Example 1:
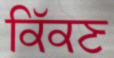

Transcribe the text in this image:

ਕਿੱਕਣ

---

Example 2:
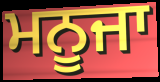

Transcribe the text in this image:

ਮਨੂਜਾ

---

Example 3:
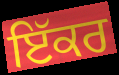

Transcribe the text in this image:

ਇੱਕਰ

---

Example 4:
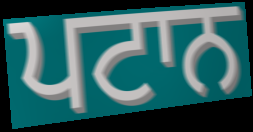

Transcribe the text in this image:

ਪਟਾਨ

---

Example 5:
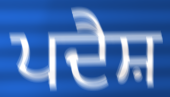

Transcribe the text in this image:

ਪਦੈਸ਼